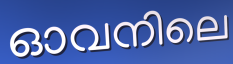
ഓവനിലെ